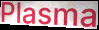
Plasma